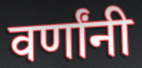
वर्णांनी